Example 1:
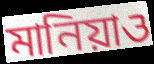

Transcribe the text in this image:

মানিয়াও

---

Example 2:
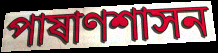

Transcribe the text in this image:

পাষাণশাসন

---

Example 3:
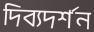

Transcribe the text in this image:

দিব্যদর্শন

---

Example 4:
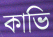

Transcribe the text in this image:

কাভি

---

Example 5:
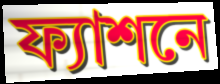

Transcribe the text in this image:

ফ্যাশনে